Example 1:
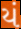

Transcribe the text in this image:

યં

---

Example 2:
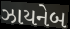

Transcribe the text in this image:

ઝાયનેબ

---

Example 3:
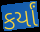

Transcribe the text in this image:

કર્યાં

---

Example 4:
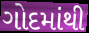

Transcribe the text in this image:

ગોદમાંથી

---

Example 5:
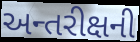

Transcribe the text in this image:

અન્તરીક્ષની